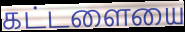
கட்டளையை